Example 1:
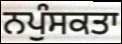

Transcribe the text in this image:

ਨਪੁੰਸਕਤਾ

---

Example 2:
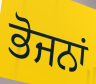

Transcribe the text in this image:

ਭੋਜਨਾਂ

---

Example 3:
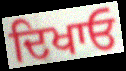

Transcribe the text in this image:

ਦਿਖਾਓ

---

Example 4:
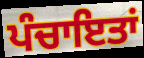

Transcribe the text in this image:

ਪੰਚਾਇਤਾਂ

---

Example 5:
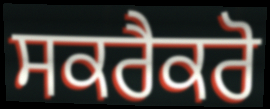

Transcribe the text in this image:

ਸਕਰੈਕਰੋ